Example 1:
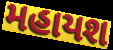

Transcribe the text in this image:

મહાયશ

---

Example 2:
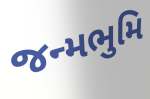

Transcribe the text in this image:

જન્મભુમિ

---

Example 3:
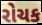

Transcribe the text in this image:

રોચક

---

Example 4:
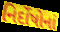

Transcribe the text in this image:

નિર્દોષોનાં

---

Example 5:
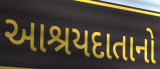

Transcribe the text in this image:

આશ્રયદાતાનો